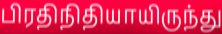
பிரதிநிதியாயிருந்து